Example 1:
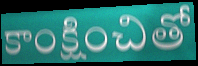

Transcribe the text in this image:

కాంక్షించితో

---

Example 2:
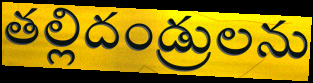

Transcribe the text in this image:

తల్లిదండ్రులను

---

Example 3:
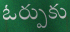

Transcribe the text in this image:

ఓర్పుకు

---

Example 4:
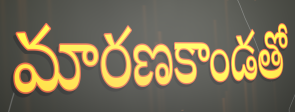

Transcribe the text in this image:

మారణకాండతో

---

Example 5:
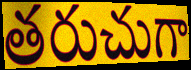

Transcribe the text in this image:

తరుచుగా